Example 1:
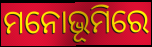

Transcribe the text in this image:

ମନୋଭୂମିରେ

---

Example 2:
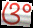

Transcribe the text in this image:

ଓଂ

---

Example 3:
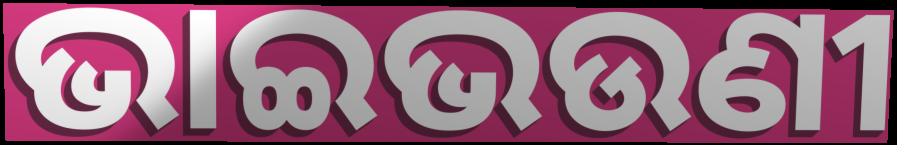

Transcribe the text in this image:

ଭାଇଭଉଣୀ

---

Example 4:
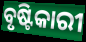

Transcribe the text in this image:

ବୃଷ୍ଟିକାରୀ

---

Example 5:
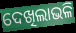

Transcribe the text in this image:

ଦେଖିଲାଭଳି